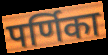
पर्णिका